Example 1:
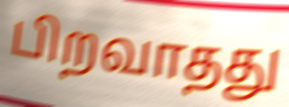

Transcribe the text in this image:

பிறவாதது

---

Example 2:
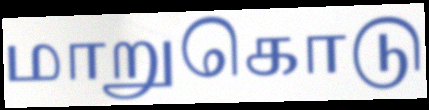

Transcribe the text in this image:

மாறுகொடு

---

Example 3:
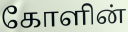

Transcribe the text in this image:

கோளின்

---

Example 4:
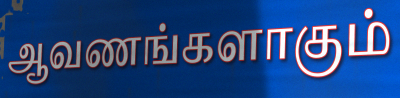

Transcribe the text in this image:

ஆவணங்களாகும்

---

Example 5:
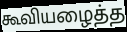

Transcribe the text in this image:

கூவியழைத்த